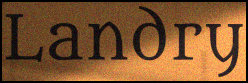
Landry